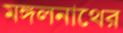
মঙ্গলনাথের